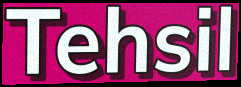
Tehsil